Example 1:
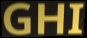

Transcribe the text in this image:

GHI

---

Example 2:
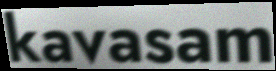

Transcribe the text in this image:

kavasam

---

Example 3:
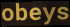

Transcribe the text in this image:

obeys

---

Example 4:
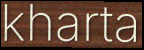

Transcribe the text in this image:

kharta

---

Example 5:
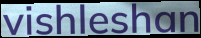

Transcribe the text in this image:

vishleshan